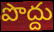
పొద్దు